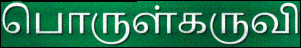
பொருள்கருவி